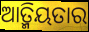
ଆତ୍ମିୟତାର